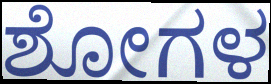
ಶೋಗಳ